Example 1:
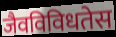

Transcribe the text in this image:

जैवविविधतेस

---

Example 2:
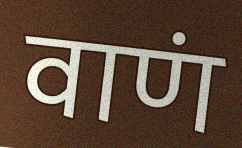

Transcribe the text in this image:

वाणं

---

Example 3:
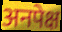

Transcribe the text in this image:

अनपेक्ष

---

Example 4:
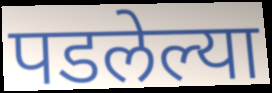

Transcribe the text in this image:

पडलेल्या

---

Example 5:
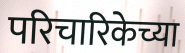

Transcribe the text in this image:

परिचारिकेच्या